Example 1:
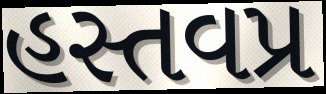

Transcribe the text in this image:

હસ્તવપ્ર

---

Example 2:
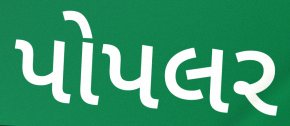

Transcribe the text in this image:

પોપલર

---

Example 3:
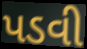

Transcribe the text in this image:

પડવી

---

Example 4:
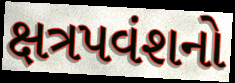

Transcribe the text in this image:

ક્ષત્રપવંશનો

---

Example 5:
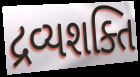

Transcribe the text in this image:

દ્રવ્યશક્તિ